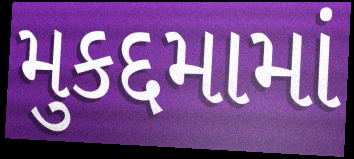
મુકદ્દમામાં